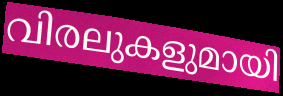
വിരലുകളുമായി